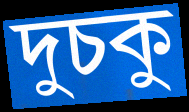
দুচকু